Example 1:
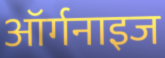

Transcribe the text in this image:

ऑर्गनाइज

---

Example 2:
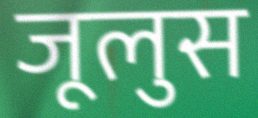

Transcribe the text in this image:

जूलुस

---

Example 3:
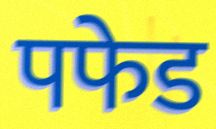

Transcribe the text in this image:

पफेड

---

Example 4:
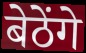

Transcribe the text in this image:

बेठेंगे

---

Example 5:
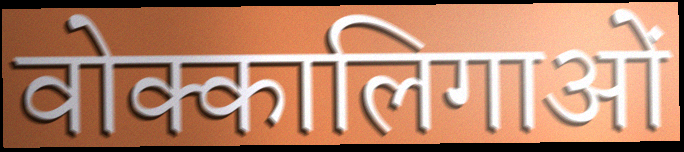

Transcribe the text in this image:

वोक्कालिगाओं